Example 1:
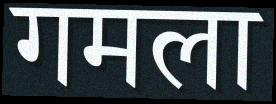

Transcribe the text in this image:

गमला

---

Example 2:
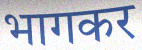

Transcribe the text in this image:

भागकर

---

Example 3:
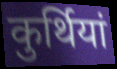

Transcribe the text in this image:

कुर्थियां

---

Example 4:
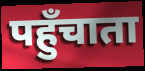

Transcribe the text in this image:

पहुँचाता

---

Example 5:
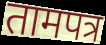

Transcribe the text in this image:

तामपत्र